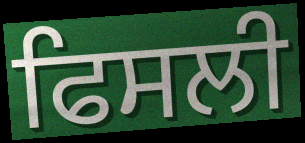
ਫਿਸਲੀ